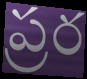
ప్రర